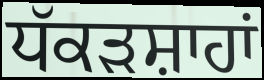
ਧੱਕੜਸ਼ਾਹਾਂ